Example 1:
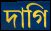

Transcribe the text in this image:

দাগি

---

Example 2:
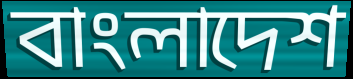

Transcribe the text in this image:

বাংলাদেশ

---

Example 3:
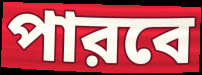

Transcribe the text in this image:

পারবে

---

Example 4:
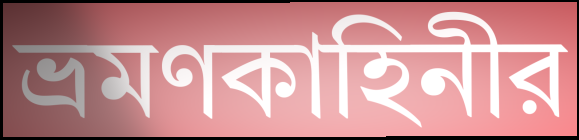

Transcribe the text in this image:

ভ্রমণকাহিনীর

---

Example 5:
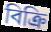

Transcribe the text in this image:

বিক্রি